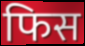
फिस